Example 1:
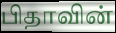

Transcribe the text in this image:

பிதாவின்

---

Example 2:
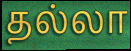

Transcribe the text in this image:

தல்லா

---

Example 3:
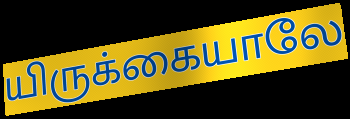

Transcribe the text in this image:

யிருக்கையாலே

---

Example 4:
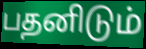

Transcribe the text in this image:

பதனிடும்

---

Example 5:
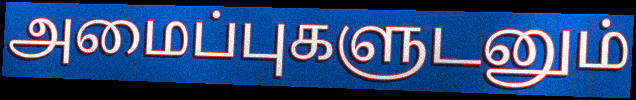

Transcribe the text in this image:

அமைப்புகளுடனும்